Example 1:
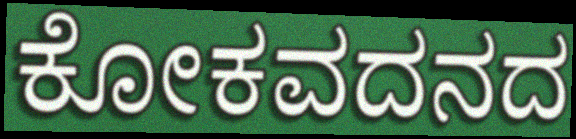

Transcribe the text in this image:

ಕೋಕವದನದ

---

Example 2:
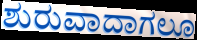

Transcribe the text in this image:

ಶುರುವಾದಾಗಲೂ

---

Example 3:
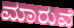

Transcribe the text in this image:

ಮಾರುವೆ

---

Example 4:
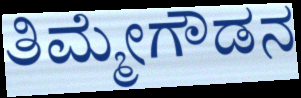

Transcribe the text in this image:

ತಿಮ್ಮೇಗೌಡನ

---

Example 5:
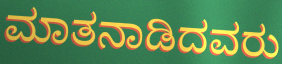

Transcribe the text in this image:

ಮಾತನಾಡಿದವರು